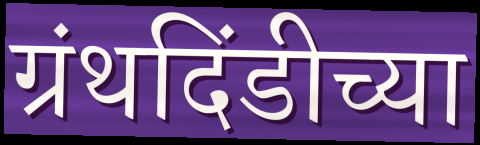
ग्रंथदिंडीच्या